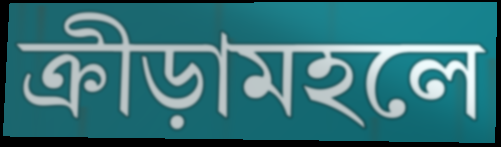
ক্রীড়ামহলে